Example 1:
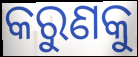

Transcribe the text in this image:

କରୁଣକୁ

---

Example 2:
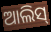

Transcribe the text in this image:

ଆଲିସ୍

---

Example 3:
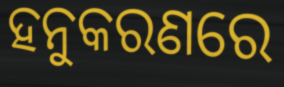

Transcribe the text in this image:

ହନୁକରଣରେ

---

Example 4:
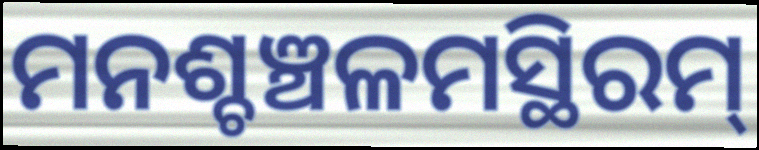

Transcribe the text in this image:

ମନଶ୍ଚଞ୍ଚଳମସ୍ଥିରମ୍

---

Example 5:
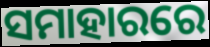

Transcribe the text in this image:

ସମାହାରରେ